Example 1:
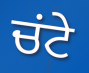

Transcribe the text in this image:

ਚਂਟੇ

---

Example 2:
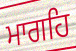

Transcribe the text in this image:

ਮਾਗਹਿ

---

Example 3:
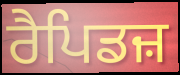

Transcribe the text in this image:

ਰੈਪਿਡਜ਼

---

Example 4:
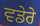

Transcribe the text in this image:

ਵਡੇਰੇ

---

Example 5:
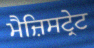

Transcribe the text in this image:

ਮੈਜ਼ਿਸਟ੍ਰੇਟ